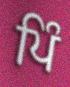
ਪਿੰ